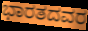
ಭಾರತದವರ